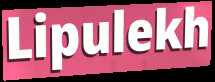
Lipulekh